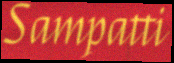
Sampatti